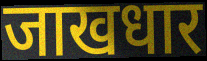
जाखधार